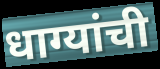
धाग्यांची